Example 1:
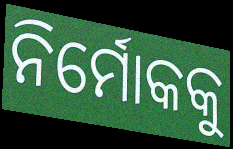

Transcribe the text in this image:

ନିର୍ମୋକକୁ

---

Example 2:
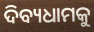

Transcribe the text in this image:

ଦିବ୍ୟଧାମକୁ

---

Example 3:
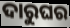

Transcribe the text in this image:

ଦାରୁଘର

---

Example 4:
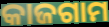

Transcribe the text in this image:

କାଜଗାମ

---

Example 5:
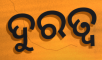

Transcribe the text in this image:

ଦୁରତ୍ଵ